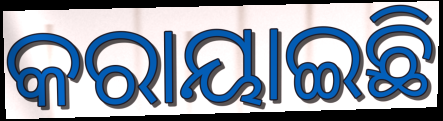
କରାୟାଇଛି